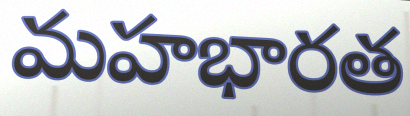
మహభారత